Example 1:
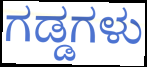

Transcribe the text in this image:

ಗಡ್ಡಗಳು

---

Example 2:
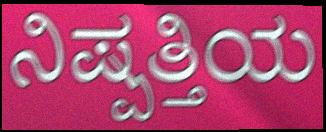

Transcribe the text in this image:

ನಿಷ್ಪತ್ತಿಯ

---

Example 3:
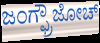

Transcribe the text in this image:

ಜಂಗ್ಫ್ರೌಜೋಚ್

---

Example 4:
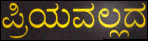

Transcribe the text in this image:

ಪ್ರಿಯವಲ್ಲದ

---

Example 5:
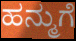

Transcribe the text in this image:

ಹನ್ಮುಗೆ